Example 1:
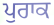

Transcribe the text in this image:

ਪੁਰਾਕ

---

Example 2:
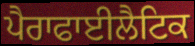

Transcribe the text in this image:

ਪੈਰਾਫਾਈਲੈਟਿਕ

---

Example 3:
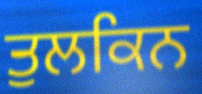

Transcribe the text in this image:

ਤੁਲਕਿਨ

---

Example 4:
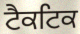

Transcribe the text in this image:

ਟੈਕਟਿਕ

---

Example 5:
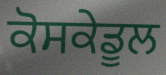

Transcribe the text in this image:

ਕੋਸਕੇਡੂਲ